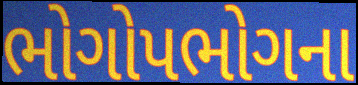
ભોગોપભોગના